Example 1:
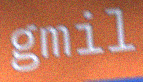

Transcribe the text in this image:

gmil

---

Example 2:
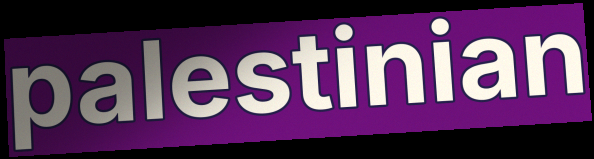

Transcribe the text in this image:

palestinian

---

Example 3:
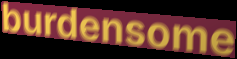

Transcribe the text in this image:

burdensome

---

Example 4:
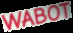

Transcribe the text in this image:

WABOT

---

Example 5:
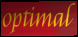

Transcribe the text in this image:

optimal